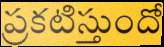
ప్రకటిస్తుందో